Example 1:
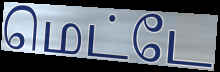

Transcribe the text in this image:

மெட்டே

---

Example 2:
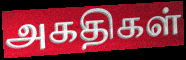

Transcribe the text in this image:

அகதிகள்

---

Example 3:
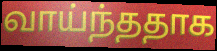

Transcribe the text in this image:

வாய்ந்ததாக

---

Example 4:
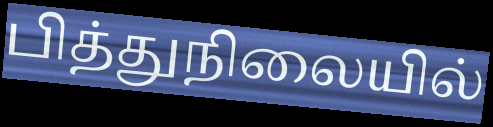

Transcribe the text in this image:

பித்துநிலையில்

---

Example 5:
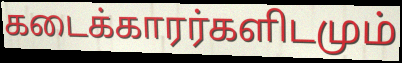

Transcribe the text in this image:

கடைக்காரர்களிடமும்